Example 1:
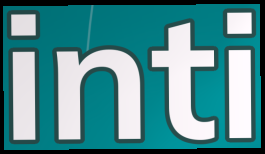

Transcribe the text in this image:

inti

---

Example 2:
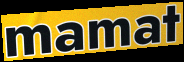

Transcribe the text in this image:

mamat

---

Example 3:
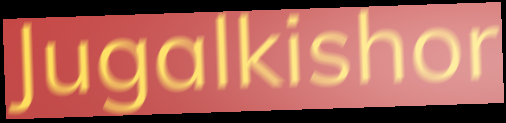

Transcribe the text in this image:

Jugalkishor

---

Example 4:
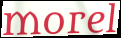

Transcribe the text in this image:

morel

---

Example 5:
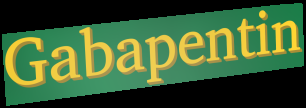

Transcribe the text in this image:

Gabapentin